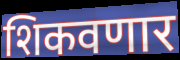
शिकवणार